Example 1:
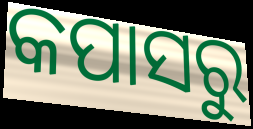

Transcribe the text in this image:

କପାସରୁ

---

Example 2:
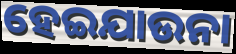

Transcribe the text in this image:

ହେଇଯାଉନା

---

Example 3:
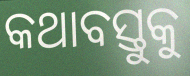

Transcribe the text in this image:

କଥାବସ୍ତୁକୁ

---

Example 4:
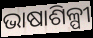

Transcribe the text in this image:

ଭାଷାଶିଳ୍ପୀ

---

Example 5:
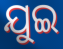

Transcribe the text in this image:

ଯୁଇ